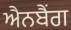
ਐਨਬੈਂਗ